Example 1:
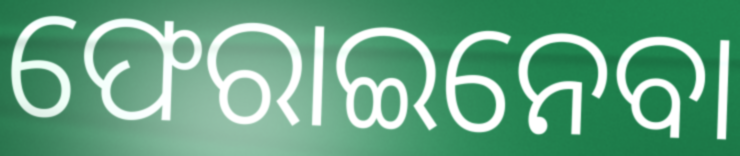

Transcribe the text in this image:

ଫେରାଇନେବା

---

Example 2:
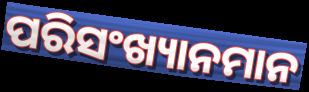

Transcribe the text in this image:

ପରିସଂଖ୍ୟାନମାନ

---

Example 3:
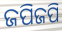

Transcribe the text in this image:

ଜପିଜପି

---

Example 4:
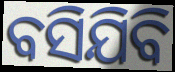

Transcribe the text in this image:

ବସିଯିବି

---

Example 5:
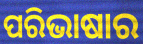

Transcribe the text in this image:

ପରିଭାଷାର